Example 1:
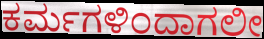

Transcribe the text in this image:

ಕರ್ಮಗಳಿಂದಾಗಲೀ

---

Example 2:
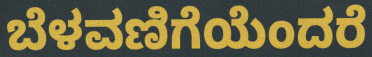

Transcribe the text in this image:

ಬೆಳವಣಿಗೆಯೆಂದರೆ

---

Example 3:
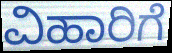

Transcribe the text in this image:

ವಿಹಾರಿಗೆ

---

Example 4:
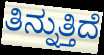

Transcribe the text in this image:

ತಿನ್ನುತ್ತಿದೆ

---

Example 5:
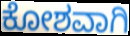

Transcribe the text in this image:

ಕೋಶವಾಗಿ